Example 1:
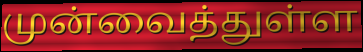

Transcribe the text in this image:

முன்வைத்துள்ள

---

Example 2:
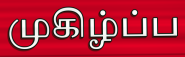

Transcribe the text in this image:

முகிழ்ப்ப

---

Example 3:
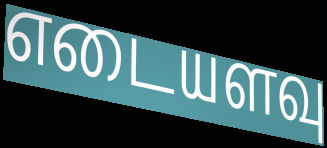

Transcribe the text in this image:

எடையளவு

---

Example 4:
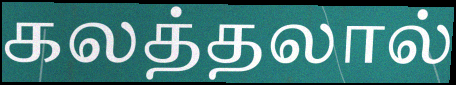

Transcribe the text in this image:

கலத்தலால்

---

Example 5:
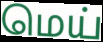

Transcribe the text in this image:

மெய்